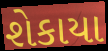
શેકાયા